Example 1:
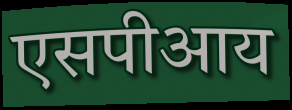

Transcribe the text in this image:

एसपीआय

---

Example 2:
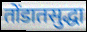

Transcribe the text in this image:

तोंडातसुद्धा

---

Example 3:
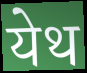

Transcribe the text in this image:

येथ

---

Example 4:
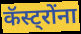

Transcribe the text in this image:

कॅस्ट्रोंना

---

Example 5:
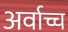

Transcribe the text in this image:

अर्वाच्च